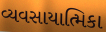
વ્યવસાયાત્મિકા